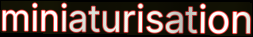
miniaturisation